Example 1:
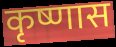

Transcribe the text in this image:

कृष्णास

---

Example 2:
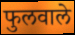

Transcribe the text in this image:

फुलवाले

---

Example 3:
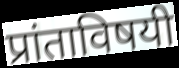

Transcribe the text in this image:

प्रांताविषयी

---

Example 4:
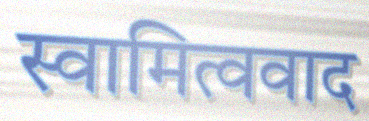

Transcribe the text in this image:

स्वामित्ववाद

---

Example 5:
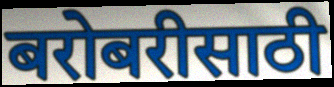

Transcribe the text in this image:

बरोबरीसाठी